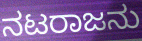
ನಟರಾಜನು